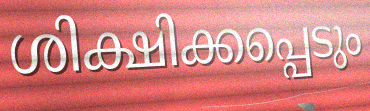
ശിക്ഷിക്കപ്പെടും